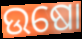
ଉଷୋ